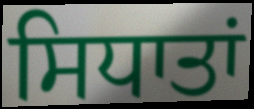
ਸਿਧਾਤਾਂ